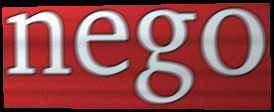
nego